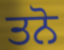
ਤਨੋ